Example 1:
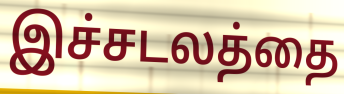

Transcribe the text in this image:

இச்சடலத்தை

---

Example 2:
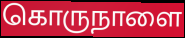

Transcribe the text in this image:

கொருநாளை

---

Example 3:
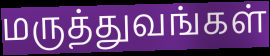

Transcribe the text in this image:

மருத்துவங்கள்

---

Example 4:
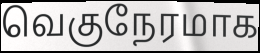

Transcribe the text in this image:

வெகுநேரமாக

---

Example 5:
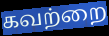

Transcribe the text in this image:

கவற்றை